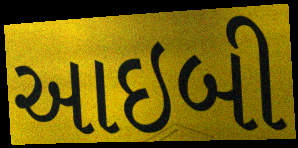
આઇબી